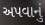
અપવાનું